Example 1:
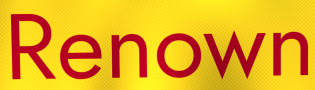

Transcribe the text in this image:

Renown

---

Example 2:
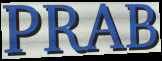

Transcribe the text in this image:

PRAB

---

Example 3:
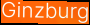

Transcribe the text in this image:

Ginzburg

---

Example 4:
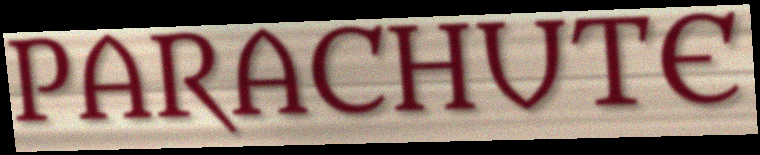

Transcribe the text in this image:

PARACHUTE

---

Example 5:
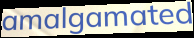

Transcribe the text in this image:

amalgamated